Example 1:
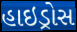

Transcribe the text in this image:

હાઇડ્રોસ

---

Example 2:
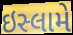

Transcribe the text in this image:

ઇસ્લામે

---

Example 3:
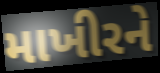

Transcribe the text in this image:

માખીરને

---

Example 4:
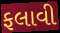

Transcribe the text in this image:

ફલાવી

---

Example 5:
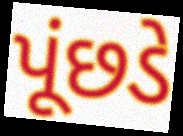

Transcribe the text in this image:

પૂંછડે